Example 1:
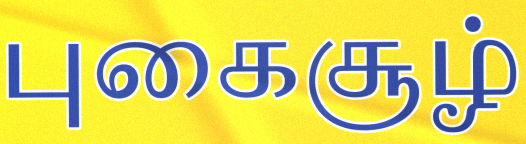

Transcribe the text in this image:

புகைசூழ்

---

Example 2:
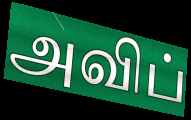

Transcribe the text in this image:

அவிப்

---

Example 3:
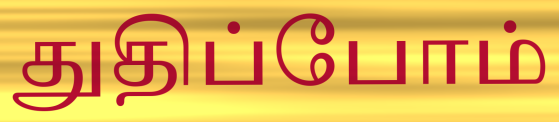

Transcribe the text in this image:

துதிப்போம்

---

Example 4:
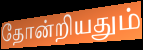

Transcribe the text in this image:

தோன்றியதும்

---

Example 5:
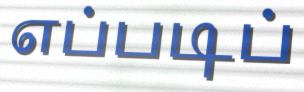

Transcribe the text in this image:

எப்படிப்